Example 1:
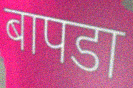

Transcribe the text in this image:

बापडा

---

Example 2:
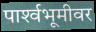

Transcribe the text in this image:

पार्श्‍वभूमीवर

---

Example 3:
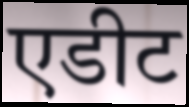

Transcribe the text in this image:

एडीट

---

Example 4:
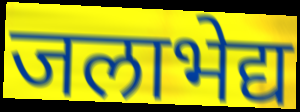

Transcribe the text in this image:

जलाभेद्य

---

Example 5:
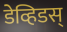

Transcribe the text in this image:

डेव्हिडस्